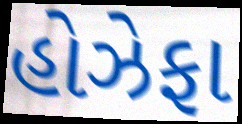
હોઝેફા